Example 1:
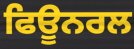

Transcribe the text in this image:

ਫਿਊਨਰਲ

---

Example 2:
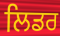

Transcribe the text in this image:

ਲਿਡਰ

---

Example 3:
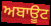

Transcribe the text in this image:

ਅਬਾਊਟ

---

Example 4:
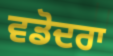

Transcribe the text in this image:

ਵਡੋਦਰਾ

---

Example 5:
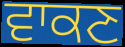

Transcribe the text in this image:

ਵਾਕਣ